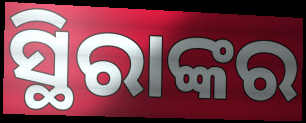
ସ୍ଥିରାଙ୍କର